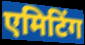
एमिटिंग